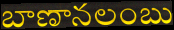
బాణానలంబు